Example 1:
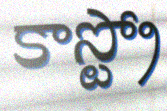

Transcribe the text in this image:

కాస్ట్రో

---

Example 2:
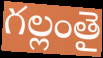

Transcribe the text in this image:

గల్లంతై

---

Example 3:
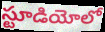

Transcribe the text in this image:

స్టూడియోలో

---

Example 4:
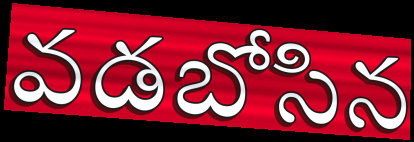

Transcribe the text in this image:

వడబోసిన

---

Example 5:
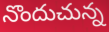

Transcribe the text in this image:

నొందుచున్న